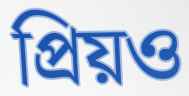
প্রিয়ও